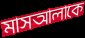
মাসআলাকে